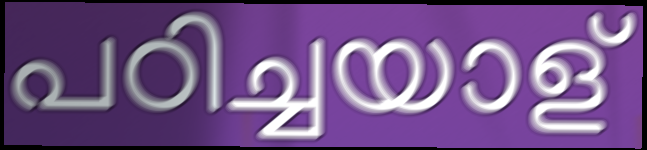
പഠിച്ചയാള്